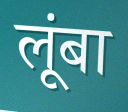
लूंबा